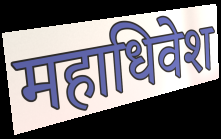
महाधिवेश